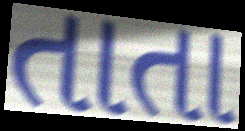
તાતા